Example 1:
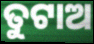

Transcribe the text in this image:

ତୁଟାଅ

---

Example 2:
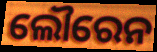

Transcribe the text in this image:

ଲୌରେନ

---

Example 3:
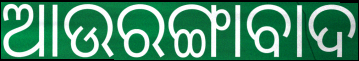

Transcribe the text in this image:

ଆଉରଙ୍ଗାବାଦ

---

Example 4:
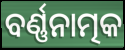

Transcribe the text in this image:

ବର୍ଣ୍ଣନାତ୍ମକ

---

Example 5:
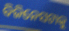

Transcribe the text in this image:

ବିଜିନେସଟାକୁ